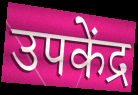
उपकेंद्र